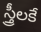
స్త్రీలకే